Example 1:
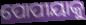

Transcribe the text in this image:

ପୋପୀୟାକୁ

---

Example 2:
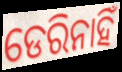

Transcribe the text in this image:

ଡେରିନାହିଁ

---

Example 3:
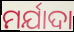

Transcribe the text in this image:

ମର୍ଯାଦା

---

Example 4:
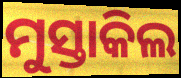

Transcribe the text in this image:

ମୁସ୍ତାକିଲ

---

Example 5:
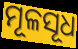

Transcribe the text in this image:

ମୂଳସୂଧ